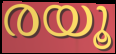
രയൂ